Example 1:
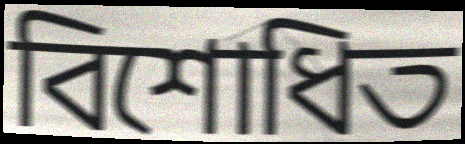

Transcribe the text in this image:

বিশোধিত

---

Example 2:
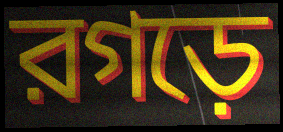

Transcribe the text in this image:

রগড়ে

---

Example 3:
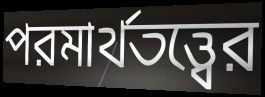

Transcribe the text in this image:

পরমার্থতত্ত্বের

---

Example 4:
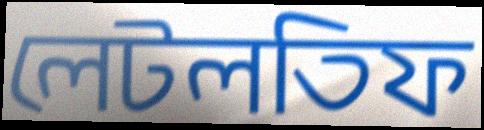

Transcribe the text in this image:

লেটলতিফ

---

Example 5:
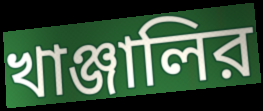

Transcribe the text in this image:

খাঞ্জালির